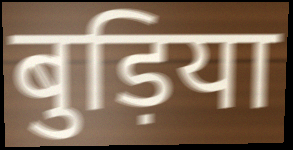
बुड़िया